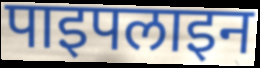
पाइपलाइन